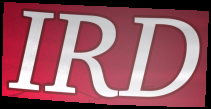
IRD